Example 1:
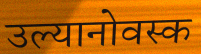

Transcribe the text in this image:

उल्यानोवस्क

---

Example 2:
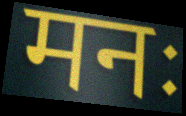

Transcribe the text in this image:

मनः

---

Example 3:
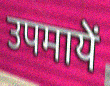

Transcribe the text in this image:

उपमायें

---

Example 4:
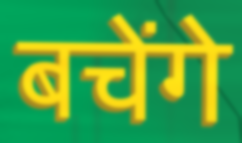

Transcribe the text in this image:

बचेंगे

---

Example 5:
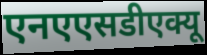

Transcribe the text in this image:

एनएएसडीएक्यू